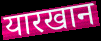
यारखान